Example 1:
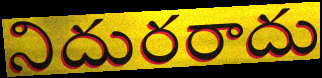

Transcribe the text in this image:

నిదురరాదు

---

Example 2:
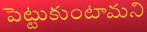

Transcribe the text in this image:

పెట్టుకుంటామని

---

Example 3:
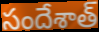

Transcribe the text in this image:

సందేశాత్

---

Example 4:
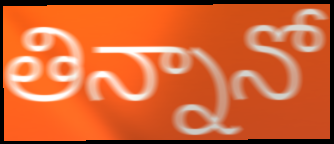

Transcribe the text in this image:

తిన్నానో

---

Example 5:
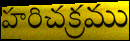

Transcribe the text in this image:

హరిచక్రము